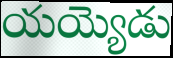
యయ్యెడు